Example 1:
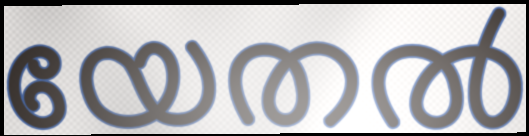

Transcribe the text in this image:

യേതൽ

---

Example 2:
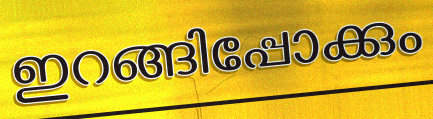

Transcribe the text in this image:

ഇറങ്ങിപ്പോക്കും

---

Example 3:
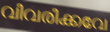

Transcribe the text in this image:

വിവരിക്കവേ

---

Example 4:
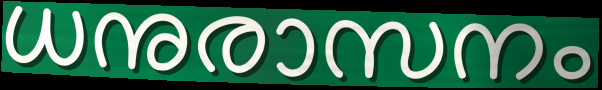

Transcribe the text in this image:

ധനുരാസനം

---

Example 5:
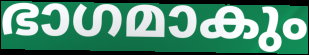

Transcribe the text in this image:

ഭാഗമാകും